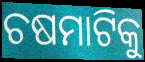
ଚଷମାଟିକୁ